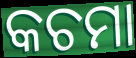
କଚମା